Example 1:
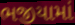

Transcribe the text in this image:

ભજીયામાં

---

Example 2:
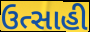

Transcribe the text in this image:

ઉત્સાહી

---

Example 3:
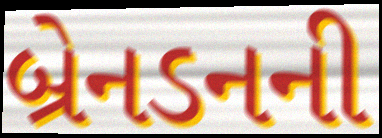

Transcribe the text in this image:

બ્રેનડનની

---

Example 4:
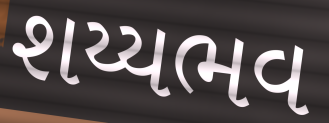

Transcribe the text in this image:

શય્યભવ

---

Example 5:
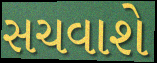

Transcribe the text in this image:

સચવાશે